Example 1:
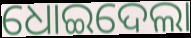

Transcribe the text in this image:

ଧୋଇଦେଲା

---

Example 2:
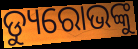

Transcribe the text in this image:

ଡ୍ୟୁରୋଭଙ୍କୁ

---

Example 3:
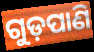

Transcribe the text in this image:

ଗୁଡ଼ପାଣି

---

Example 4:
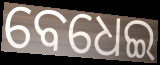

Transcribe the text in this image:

ବେଧେଇ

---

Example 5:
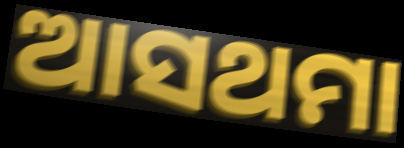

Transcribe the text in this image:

ଆସଥମା